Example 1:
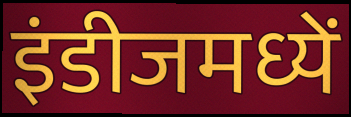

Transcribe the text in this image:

इंडीजमध्यें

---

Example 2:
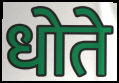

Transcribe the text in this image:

धोते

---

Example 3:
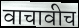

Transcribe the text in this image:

वाचावीच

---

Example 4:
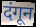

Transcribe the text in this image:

दंगून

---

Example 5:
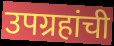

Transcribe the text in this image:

उपग्रहांची